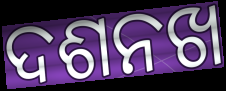
ଦଶନଖ